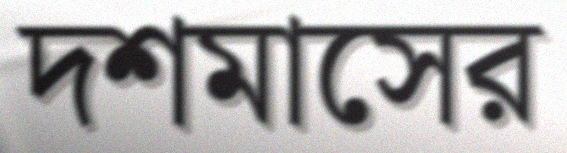
দশমাসের